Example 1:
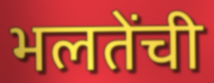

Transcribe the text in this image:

भलतेंची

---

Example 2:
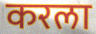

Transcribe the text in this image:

करला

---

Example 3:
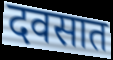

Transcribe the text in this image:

दवसात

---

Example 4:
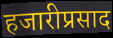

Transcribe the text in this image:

हजारीप्रसाद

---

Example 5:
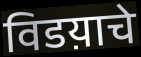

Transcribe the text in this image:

विडय़ाचे